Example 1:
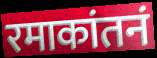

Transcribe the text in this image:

रमाकांतनं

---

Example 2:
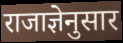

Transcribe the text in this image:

राजाज्ञेनुसार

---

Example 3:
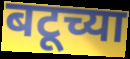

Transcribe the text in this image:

बटूच्या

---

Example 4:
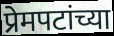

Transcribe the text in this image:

प्रेमपटांच्या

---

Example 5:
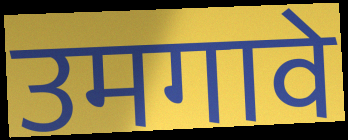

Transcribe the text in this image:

उमगावे